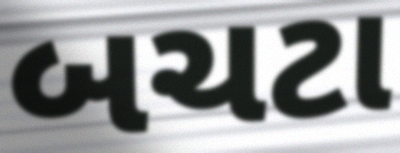
બચટા